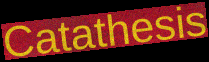
Catathesis